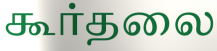
கூர்தலை